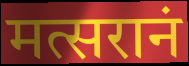
मत्सरानं